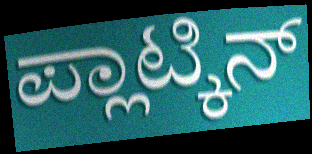
ಪ್ಲಾಟ್ಕಿನ್